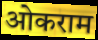
ओकराम